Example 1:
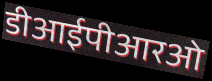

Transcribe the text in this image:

डीआईपीआरओ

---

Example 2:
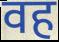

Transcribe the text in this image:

वह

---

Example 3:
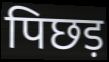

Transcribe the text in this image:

पिछड़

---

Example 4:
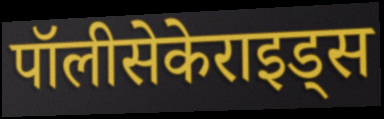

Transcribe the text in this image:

पॉलीसेकेराइड्स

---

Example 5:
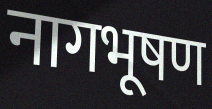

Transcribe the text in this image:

नागभूषण